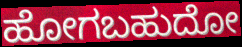
ಹೋಗಬಹುದೋ